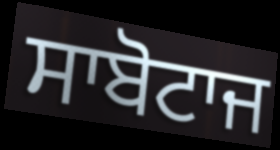
ਸਾਬੋਟਾਜ